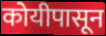
कोयीपासून